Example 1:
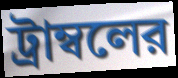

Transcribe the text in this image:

ট্রাম্বলের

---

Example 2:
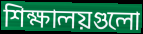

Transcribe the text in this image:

শিক্ষালয়গুলো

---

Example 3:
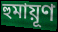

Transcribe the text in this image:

হুমায়ূণ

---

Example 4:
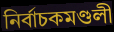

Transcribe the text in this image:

নির্বাচকমণ্ডলী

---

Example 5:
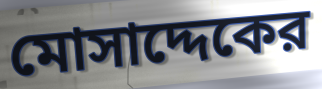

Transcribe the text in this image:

মোসাদ্দেকের